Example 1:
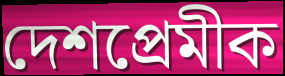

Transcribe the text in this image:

দেশপ্রেমীক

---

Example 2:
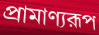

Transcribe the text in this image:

প্রামাণ্যরূপ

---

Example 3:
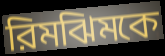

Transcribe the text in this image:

রিমঝিমকে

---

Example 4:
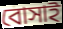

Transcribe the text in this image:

বোসাই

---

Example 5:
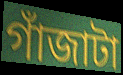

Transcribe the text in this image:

গাঁজাটা